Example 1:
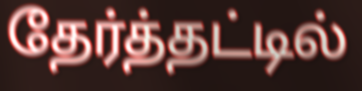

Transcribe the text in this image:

தேர்த்தட்டில்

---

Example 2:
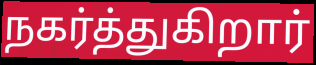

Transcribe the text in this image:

நகர்த்துகிறார்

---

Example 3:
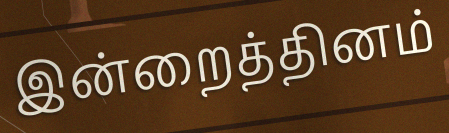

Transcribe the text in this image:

இன்றைத்தினம்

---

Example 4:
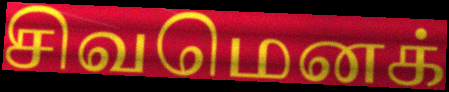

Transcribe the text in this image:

சிவமெனக்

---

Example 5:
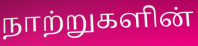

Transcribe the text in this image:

நாற்றுகளின்